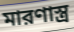
মারণাস্ত্র